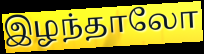
இழந்தாலோ